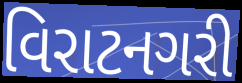
વિરાટનગરી